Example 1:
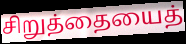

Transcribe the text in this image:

சிறுத்தையைத்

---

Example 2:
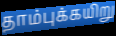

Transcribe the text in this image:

தாம்புக்கயிறு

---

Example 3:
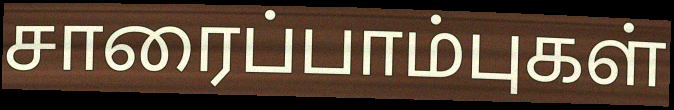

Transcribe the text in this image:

சாரைப்பாம்புகள்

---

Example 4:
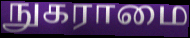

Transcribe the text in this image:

நுகராமை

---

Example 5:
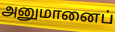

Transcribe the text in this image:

அனுமானைப்